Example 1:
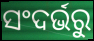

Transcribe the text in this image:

ସଂଦର୍ଭରୁ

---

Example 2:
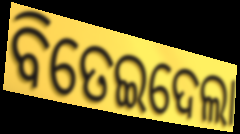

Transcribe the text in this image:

ବିତେଇଦେଲା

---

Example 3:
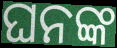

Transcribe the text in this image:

ଘନଙ୍କ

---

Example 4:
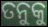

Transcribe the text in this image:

ତନୁକୁ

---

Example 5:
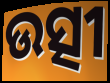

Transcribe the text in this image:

ଉତ୍ସୀ